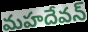
మహదేవన్